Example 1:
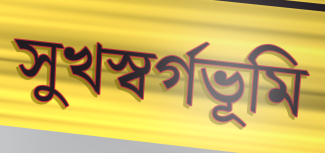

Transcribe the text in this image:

সুখস্বর্গভূমি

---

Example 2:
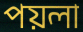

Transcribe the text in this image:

পয়লা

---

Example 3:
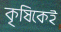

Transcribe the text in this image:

কৃষিকেই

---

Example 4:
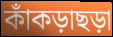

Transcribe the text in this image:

কাঁকড়াছড়া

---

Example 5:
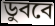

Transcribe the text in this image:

ডুববে